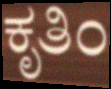
ಕೃತಿಂ